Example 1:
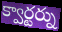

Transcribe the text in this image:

క్వార్టర్ను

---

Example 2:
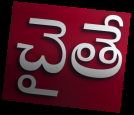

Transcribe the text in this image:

చైతే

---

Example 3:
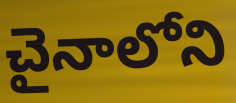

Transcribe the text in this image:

చైనాలోని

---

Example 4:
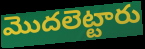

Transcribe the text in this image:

మొదలెట్టారు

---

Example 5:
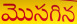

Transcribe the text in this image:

మొసగిన